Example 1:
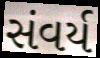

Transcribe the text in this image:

સંવર્ય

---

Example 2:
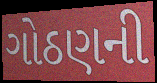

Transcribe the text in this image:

ગોઠણની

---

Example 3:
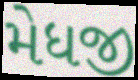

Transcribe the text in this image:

મેધજી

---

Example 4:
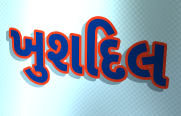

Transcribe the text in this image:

ખુશદિલ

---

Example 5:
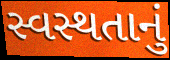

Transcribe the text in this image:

સ્વસ્થતાનું